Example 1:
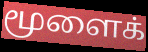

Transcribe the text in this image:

மூளைக்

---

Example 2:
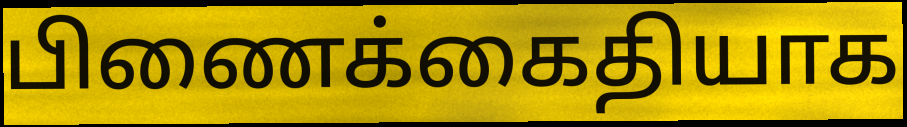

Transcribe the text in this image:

பிணைக்கைதியாக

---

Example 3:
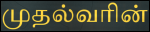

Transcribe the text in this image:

முதல்வரின்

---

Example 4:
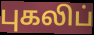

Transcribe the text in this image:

புகலிப்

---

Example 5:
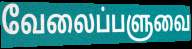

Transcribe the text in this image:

வேலைப்பளுவை